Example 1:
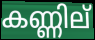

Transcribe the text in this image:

കണ്ണില്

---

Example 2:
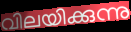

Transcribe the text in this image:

വിലയിക്കുന്നു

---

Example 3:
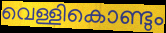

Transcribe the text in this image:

വെള്ളികൊണ്ടും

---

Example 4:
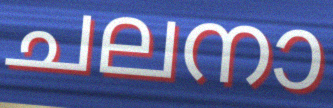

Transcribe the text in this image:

ചലനാ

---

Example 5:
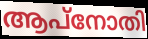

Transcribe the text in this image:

ആപ്നോതി